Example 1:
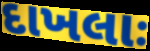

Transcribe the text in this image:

દાખલાઃ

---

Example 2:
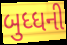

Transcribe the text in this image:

બુધ્ધની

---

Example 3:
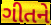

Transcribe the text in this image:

ગીતને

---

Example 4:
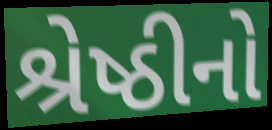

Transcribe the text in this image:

શ્રેષ્ઠીનો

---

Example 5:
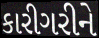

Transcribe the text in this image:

કારીગરીને